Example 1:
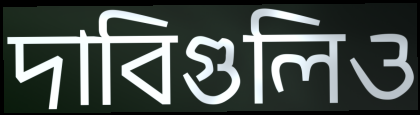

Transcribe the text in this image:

দাবিগুলিও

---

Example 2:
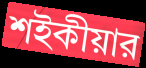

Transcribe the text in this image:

শইকীয়ার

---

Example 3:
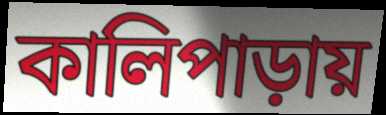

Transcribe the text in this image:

কালিপাড়ায়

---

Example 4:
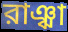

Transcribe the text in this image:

রাঞ্ঝা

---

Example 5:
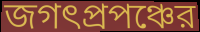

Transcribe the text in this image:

জগৎপ্রপঞ্চের